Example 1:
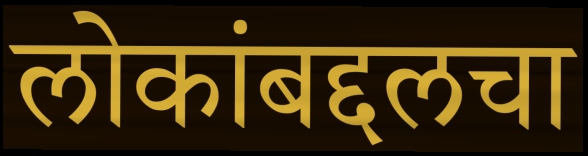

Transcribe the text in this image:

लोकांबद्दलचा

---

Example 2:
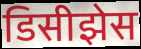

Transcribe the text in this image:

डिसीझेस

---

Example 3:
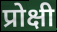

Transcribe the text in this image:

प्रोक्षी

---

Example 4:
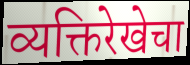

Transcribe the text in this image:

व्यक्तिरेखेचा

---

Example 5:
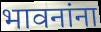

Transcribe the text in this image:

भावनांना